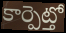
కార్పెట్తో